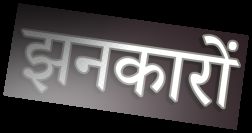
झनकारों